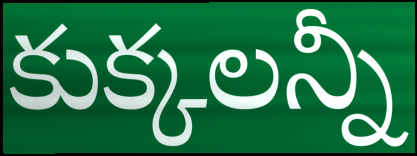
కుక్కలన్నీ